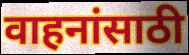
वाहनांसाठी